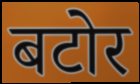
बटोर